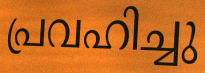
പ്രവഹിച്ചു